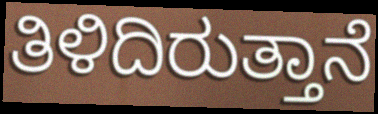
ತಿಳಿದಿರುತ್ತಾನೆ